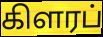
கிளரப்